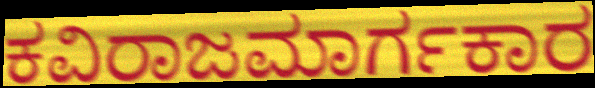
ಕವಿರಾಜಮಾರ್ಗಕಾರ